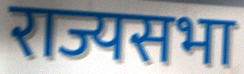
राज्यसभा